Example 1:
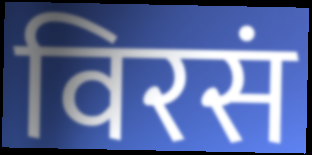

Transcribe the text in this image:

विरसं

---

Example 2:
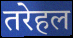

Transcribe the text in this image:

तरेहल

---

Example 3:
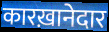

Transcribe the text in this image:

कारख़ानेदार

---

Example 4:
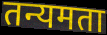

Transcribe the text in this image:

तन्यमता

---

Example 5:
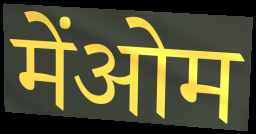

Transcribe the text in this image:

मेंओम